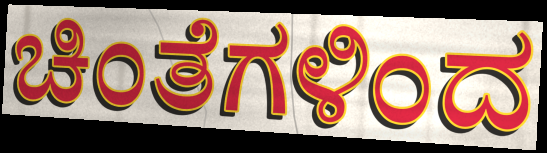
ಚಿಂತೆಗಳಿಂದ